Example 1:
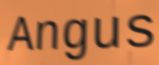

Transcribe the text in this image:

Angus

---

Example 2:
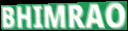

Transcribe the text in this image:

BHIMRAO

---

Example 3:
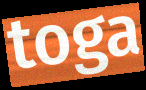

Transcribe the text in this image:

toga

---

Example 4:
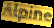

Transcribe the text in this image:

Alpine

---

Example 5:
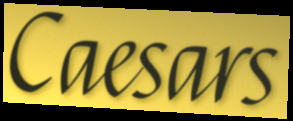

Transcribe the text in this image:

Caesars